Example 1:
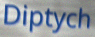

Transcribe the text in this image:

Diptych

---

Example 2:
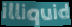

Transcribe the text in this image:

illiquid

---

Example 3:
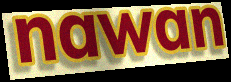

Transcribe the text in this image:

nawan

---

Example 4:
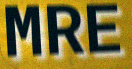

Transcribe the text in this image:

MRE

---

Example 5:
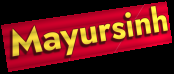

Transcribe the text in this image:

Mayursinh